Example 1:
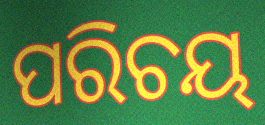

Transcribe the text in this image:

ପରିଚୟ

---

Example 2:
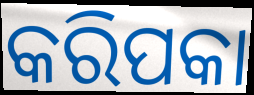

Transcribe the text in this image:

କରିପକା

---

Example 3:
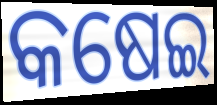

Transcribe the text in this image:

କଷେଇ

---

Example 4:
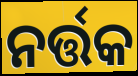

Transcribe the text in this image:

ନର୍ତ୍ତକ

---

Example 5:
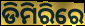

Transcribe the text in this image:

ଡିମିରିରେ